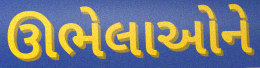
ઊભેલાઓને